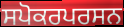
ਸਪੋਕਰਪਰਸਨ